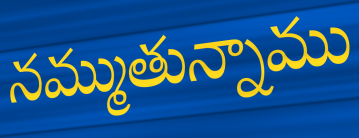
నమ్ముతున్నాము